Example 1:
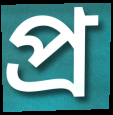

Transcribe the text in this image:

প্ৰ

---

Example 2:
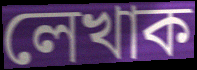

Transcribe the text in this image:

লেখাক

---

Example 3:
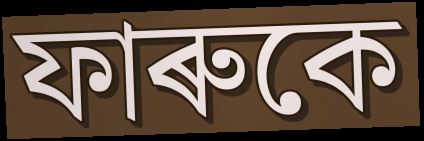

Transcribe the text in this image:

ফাৰুকে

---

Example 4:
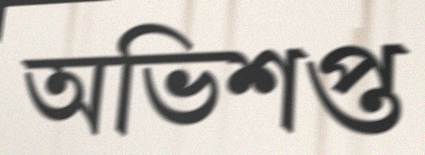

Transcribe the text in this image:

অভিশপ্ত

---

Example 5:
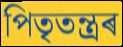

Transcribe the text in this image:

পিতৃতন্ত্ৰৰ